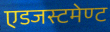
एडजस्टमेण्ट